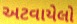
અટવાયેલો